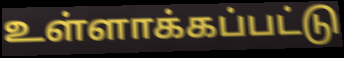
உள்ளாக்கப்பட்டு